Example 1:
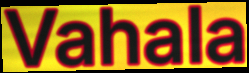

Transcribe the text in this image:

Vahala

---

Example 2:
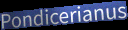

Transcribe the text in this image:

Pondicerianus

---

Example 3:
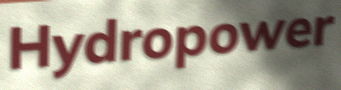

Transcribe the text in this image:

Hydropower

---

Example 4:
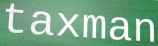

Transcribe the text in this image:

taxman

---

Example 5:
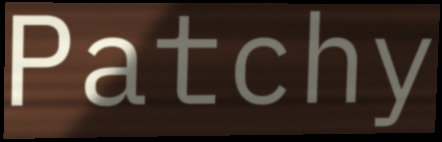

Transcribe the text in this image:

Patchy